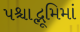
પશ્ચાદ્ભૂમિમાં